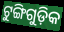
ଟୁଙ୍ଗିଗୁଡ଼ିକ